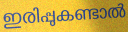
ഇരിപ്പുകണ്ടാൽ